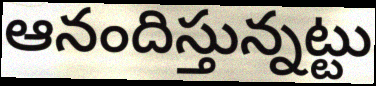
ఆనందిస్తున్నట్టు